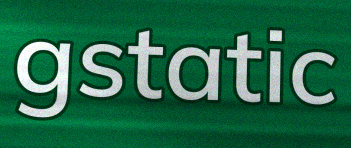
gstatic